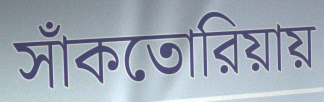
সাঁকতোরিয়ায়